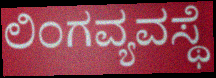
ಲಿಂಗವ್ಯವಸ್ಥೆ